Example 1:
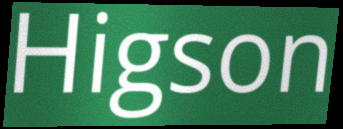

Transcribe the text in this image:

Higson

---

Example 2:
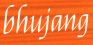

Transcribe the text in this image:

bhujang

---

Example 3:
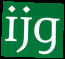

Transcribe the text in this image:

ijg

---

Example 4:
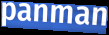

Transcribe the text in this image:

panman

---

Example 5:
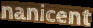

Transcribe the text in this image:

nanicent